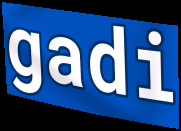
gadi